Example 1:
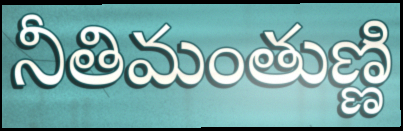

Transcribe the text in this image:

నీతిమంతుణ్ణి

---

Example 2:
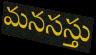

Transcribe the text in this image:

మనసస్తు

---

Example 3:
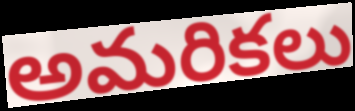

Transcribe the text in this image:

అమరికలు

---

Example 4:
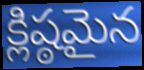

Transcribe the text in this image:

క్లిష్ఠమైన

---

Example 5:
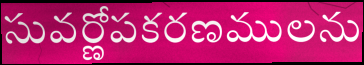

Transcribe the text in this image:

సువర్ణోపకరణములను